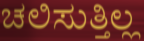
ಚಲಿಸುತ್ತಿಲ್ಲ